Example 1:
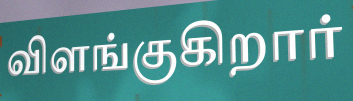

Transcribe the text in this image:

விளங்குகிறார்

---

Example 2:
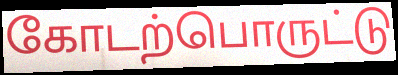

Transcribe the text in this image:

கோடற்பொருட்டு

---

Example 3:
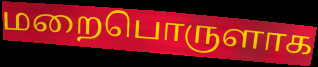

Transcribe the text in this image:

மறைபொருளாக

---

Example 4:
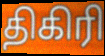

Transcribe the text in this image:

திகிரி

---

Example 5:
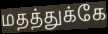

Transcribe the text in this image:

மதத்துக்கே